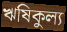
ঋষিকুল্য